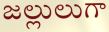
జల్లులుగా